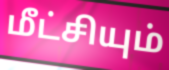
மீட்சியும்